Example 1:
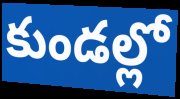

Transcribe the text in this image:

కుండల్లో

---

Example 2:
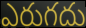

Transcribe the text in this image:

ఎరుగదు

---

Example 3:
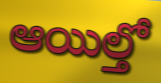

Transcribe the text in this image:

ఆయిల్తో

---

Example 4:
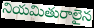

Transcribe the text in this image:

నియమితురాలైన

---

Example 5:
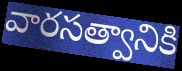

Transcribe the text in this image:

వారసత్వానికి